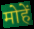
मोहें